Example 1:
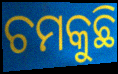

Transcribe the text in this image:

ଚମକୁଛି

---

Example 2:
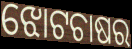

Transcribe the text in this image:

ଝୋଟଚାଷର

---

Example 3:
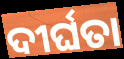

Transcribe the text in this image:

ଦୀର୍ଘତା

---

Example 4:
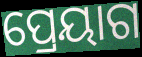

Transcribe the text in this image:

ପ୍ରେୟାଗ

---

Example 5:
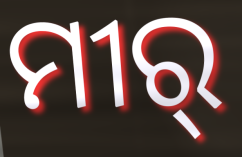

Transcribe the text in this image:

ମୀର୍